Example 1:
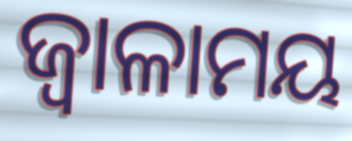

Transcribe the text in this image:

ଜ୍ୱାଳାମୟ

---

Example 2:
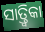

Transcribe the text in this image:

ସାତ୍ତ୍ୱିକା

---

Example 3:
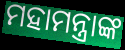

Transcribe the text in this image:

ମହାମନ୍ତ୍ରାଙ୍କ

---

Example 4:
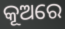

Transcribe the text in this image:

କୂଅରେ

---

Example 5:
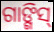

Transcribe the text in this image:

ଗାଙ୍ଗିସ୍